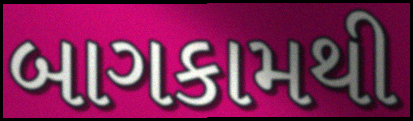
બાગકામથી